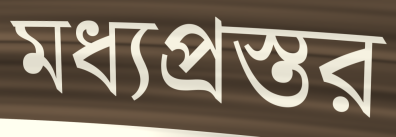
মধ্যপ্রস্তর